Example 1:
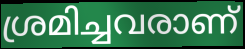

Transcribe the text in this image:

ശ്രമിച്ചവരാണ്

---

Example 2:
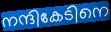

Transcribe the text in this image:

നന്ദികേടിനെ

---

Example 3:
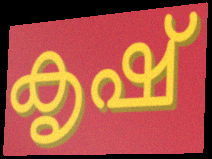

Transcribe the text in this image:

കൃഷ്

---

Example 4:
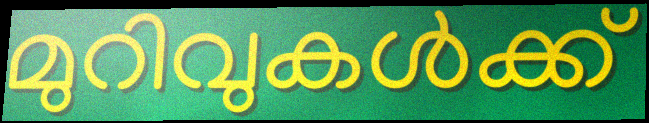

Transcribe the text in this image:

മുറിവുകൾക്ക്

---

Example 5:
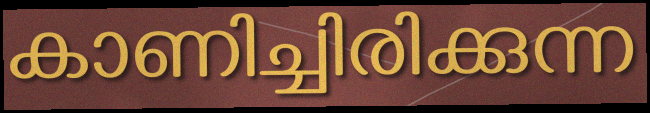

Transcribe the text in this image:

കാണിച്ചിരിക്കുന്ന